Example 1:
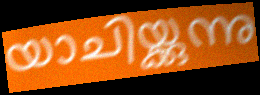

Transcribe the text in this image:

യാചിയ്ക്കുന്നു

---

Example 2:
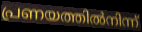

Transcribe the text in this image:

പ്രണയത്തിൽനിന്ന്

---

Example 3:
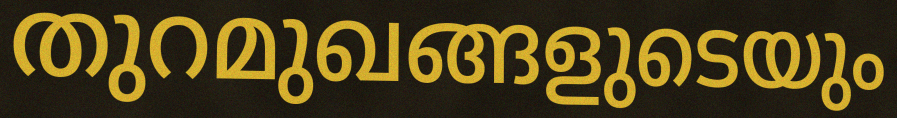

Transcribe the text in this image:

തുറമുഖങ്ങളുടെയും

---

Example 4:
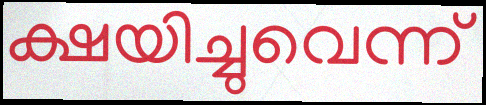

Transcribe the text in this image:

ക്ഷയിച്ചുവെന്ന്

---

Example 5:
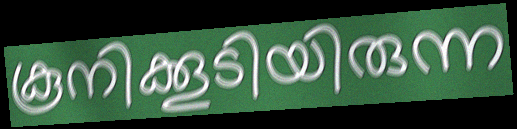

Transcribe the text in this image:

കൂനിക്കൂടിയിരുന്ന